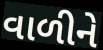
વાળીને